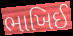
ભાખિઈ